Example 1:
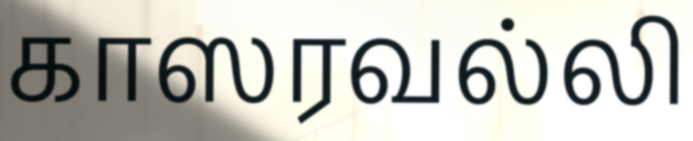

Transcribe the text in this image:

காஸரவல்லி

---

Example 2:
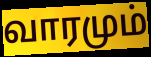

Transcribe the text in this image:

வாரமும்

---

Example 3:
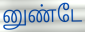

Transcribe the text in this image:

னுண்டே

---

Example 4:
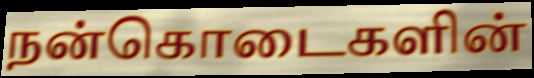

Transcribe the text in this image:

நன்கொடைகளின்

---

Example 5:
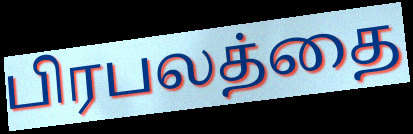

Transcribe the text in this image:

பிரபலத்தை